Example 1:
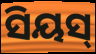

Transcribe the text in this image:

ସିୟସ୍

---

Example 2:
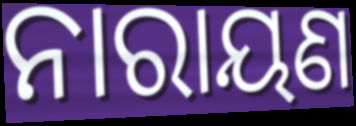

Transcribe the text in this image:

ନାରାୟଣ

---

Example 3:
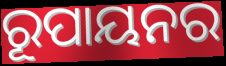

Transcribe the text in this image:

ରୂପାୟନର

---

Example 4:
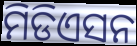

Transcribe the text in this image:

ମିଡିଏସନ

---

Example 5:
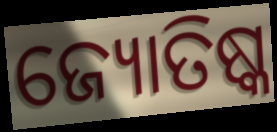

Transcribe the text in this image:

ଜ୍ୟୋତିଷ୍କ